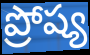
ప్రోష్య